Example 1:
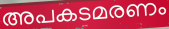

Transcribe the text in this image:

അപകടമരണം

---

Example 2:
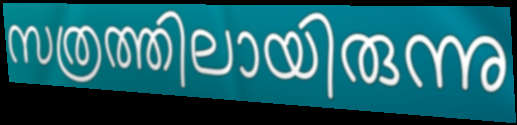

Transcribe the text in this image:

സത്രത്തിലായിരുന്നു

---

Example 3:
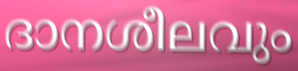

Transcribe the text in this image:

ദാനശീലവും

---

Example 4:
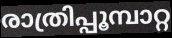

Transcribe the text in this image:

രാത്രിപ്പൂമ്പാറ്റ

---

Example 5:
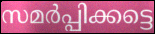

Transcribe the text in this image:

സമർപ്പിക്കട്ടെ